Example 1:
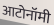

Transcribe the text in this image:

आटोनॉमी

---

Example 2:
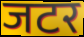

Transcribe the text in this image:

जटर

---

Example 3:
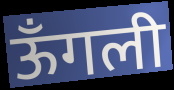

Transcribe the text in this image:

ऊँगली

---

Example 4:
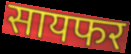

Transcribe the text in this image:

सायफर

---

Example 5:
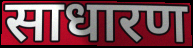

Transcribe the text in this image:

साधारण